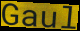
Gaul